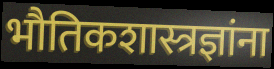
भौतिकशास्त्रज्ञांना